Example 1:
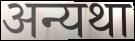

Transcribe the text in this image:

अन्यथा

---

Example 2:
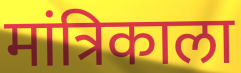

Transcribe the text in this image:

मांत्रिकाला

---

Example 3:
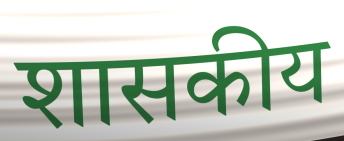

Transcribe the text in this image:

शासकीय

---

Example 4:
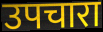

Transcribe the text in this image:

उपचारा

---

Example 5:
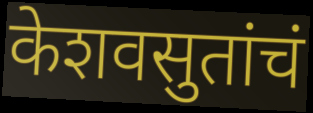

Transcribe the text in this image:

केशवसुतांचं